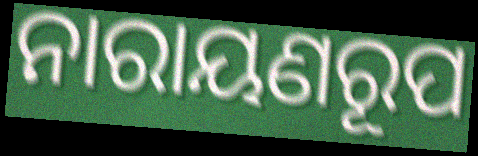
ନାରାୟଣରୂପ